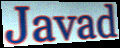
Javad